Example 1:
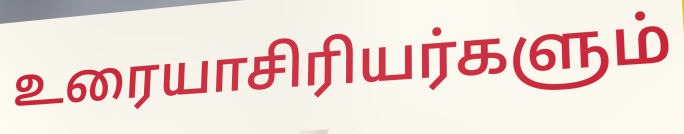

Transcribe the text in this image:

உரையாசிரியர்களும்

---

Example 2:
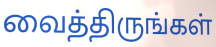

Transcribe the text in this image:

வைத்திருங்கள்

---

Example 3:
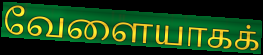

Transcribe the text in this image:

வேளையாகக்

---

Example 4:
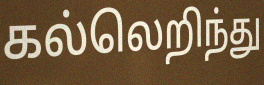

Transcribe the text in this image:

கல்லெறிந்து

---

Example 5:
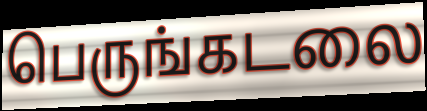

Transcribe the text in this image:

பெருங்கடலை